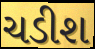
ચડીશ